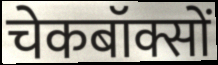
चेकबॉक्सों